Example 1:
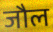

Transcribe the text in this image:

जौल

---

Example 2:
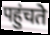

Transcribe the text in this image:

पहुंचते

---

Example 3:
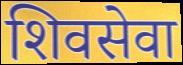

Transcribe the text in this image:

शिवसेवा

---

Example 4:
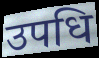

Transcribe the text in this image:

उपधि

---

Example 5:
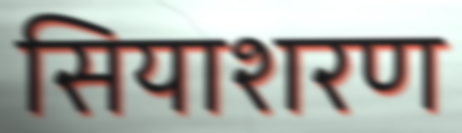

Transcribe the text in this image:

सियाशरण